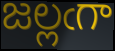
జల్లఁగా